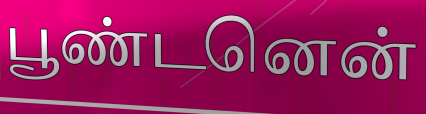
பூண்டனென்